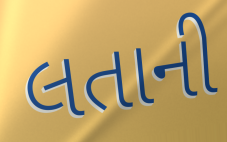
લતાની